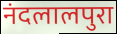
नंदलालपुरा